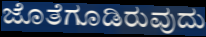
ಜೊತೆಗೂಡಿರುವುದು